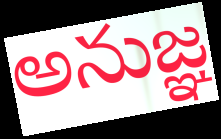
అనుజ్ఞ